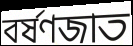
বর্ষণজাত